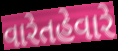
વારેતહેવારે